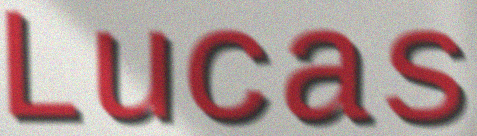
Lucas